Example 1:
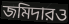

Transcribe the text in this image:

জমিদারও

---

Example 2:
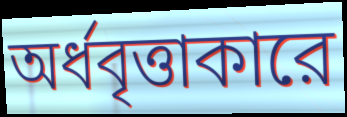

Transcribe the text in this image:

অর্ধবৃত্তাকারে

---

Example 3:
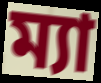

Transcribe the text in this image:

ম্যা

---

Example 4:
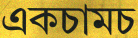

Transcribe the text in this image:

একচামচ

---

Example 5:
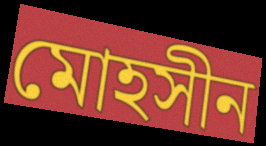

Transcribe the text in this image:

মোহসীন